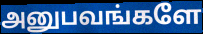
அனுபவங்களே